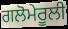
ਗਲੋਮੇਰੂਲੀ